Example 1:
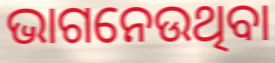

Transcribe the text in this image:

ଭାଗନେଉଥିବା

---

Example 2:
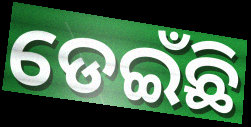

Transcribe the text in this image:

ଡେଇଁଛି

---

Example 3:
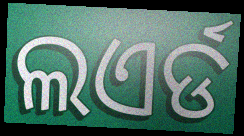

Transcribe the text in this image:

ଲଏର୍ଡ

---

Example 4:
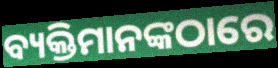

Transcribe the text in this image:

ବ୍ୟକ୍ତିମାନଙ୍କଠାରେ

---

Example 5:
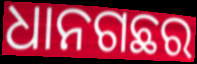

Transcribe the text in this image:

ଧାନଗଛର